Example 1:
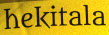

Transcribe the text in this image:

hekitala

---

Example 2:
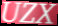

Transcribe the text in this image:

UZX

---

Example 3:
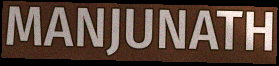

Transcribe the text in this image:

MANJUNATH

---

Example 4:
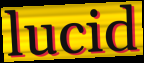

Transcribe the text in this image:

lucid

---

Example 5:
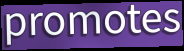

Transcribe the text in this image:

promotes